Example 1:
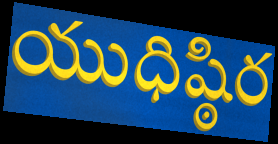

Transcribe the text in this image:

యుధిష్ఠిర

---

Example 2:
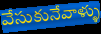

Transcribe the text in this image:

వేసుకునేవాళ్ళు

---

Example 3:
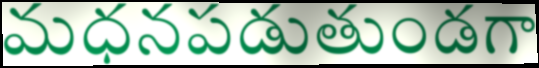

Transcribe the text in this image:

మధనపడుతుండగా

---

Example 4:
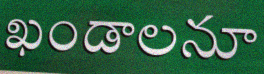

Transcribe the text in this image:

ఖండాలనూ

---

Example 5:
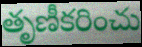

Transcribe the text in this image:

తృణీకరించు